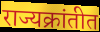
राज्यक्रांतीत